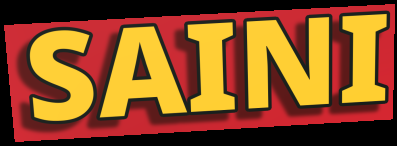
SAINI